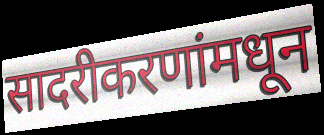
सादरीकरणांमधून